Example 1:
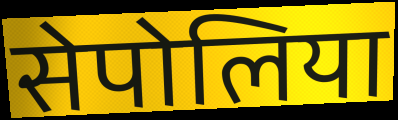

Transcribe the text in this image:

सेपोलिया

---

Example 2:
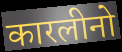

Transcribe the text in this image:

कारलीनो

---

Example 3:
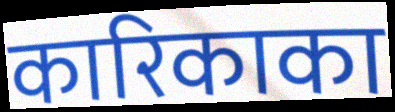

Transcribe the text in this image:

कारिकाका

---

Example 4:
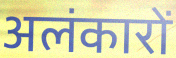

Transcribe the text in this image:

अलंकारों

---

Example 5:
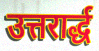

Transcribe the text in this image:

उत्तरार्द्ध